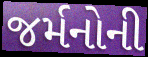
જર્મનોની